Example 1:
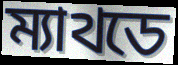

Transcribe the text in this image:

ম্যাথডে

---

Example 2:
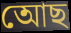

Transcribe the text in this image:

আেছ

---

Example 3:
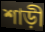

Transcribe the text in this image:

শাড়ী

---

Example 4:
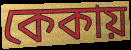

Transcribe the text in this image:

কেকায়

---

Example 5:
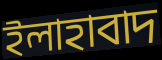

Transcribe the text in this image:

ইলাহাবাদ